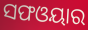
ସଫଓୟାର